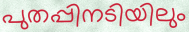
പുതപ്പിനടിയിലും